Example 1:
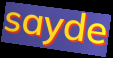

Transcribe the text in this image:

sayde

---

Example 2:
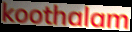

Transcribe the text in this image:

koothalam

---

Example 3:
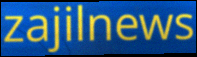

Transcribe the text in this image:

zajilnews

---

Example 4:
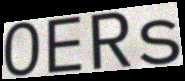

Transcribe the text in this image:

OERs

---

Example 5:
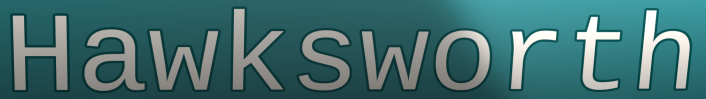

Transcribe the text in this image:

Hawksworth